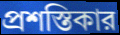
প্রশস্তিকার